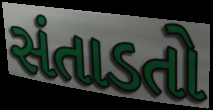
સંતાડતો